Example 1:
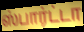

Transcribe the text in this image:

ஸ்பார்ட்டா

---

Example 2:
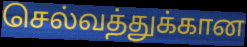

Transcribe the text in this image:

செல்வத்துக்கான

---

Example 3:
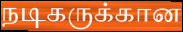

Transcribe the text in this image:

நடிகருக்கான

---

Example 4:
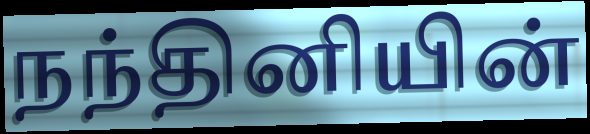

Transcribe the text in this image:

நந்தினியின்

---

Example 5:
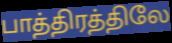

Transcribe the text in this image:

பாத்திரத்திலே